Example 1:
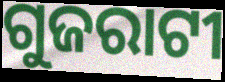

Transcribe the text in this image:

ଗୁଜରାଟୀ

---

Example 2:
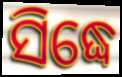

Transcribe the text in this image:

ସିଦ୍ଧେ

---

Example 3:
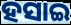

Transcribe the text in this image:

ହସାଇ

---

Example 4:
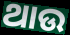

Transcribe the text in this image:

ଥାଉ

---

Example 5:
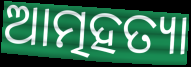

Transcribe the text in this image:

ଆତ୍ମହତ୍ୟା